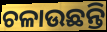
ଚଳାଉଛନ୍ତି